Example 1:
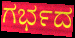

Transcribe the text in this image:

ಗರ್ಭದ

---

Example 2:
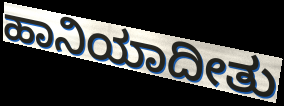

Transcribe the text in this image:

ಹಾನಿಯಾದೀತು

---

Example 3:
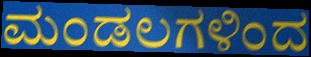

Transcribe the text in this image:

ಮಂಡಲಗಳಿಂದ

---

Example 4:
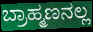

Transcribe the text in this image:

ಬ್ರಾಹ್ಮಣನಲ್ಲ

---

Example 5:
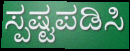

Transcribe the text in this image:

ಸ್ಪಷ್ಟಪಡಿಸಿ